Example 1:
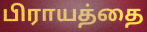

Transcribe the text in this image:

பிராயத்தை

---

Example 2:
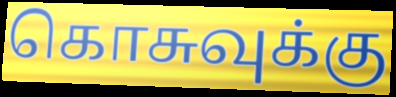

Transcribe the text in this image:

கொசுவுக்கு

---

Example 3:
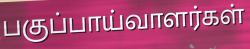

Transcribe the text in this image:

பகுப்பாய்வாளர்கள்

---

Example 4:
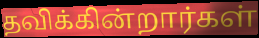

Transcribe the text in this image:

தவிக்கின்றார்கள்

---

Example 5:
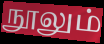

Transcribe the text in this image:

நூலும்